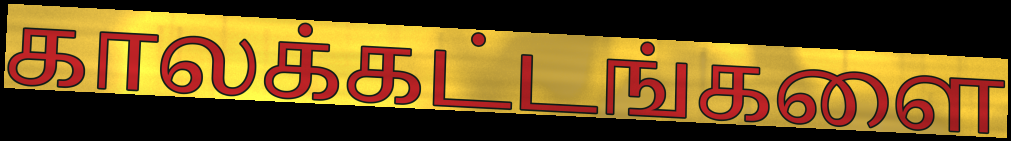
காலக்கட்டங்களை